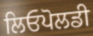
ਲਿਓਪੋਲਡੀ